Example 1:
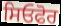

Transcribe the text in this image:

ਸਿਓਫੋਰ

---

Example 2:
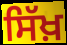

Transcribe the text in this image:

ਸਿੱਖ਼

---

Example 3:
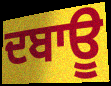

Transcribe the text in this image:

ਦਬਾਊ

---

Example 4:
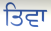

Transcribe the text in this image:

ਤਿਵਾ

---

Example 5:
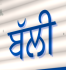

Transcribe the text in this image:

ਬੱਲੀ